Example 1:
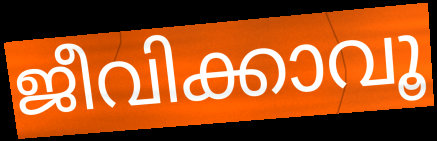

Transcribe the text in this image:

ജീവിക്കാവൂ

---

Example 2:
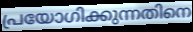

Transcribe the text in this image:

പ്രയോഗിക്കുന്നതിനെ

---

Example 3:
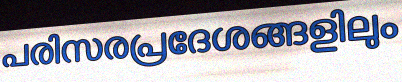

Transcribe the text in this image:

പരിസരപ്രദേശങ്ങളിലും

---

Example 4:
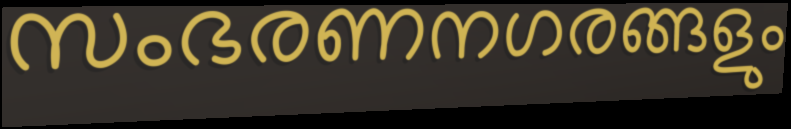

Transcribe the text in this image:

സംഭരണനഗരങ്ങളും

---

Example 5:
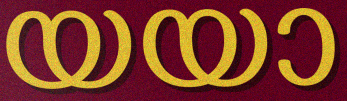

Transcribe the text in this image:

യയാ